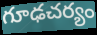
గూఢచర్యం